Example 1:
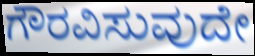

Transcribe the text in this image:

ಗೌರವಿಸುವುದೇ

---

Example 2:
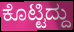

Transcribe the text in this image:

ಕೊಟ್ಟಿದ್ದು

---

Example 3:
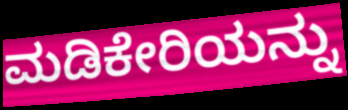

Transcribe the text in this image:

ಮಡಿಕೇರಿಯನ್ನು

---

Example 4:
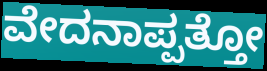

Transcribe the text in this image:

ವೇದನಾಪ್ಪತ್ತೋ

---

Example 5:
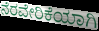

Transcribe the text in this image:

ನೆರವೇರಿಕೆಯಾಗಿ